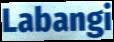
Labangi